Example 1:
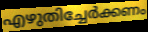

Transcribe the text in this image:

എഴുതിച്ചേർക്കണം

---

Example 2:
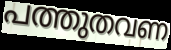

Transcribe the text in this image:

പത്തുതവണ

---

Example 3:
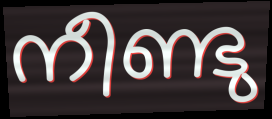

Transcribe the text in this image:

നീണ്ടു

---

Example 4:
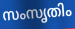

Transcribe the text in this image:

സംസൃതിം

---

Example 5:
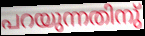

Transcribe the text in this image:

പറയുന്നതിനു്